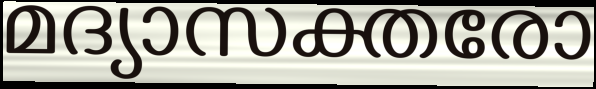
മദ്യാസക്തരോ